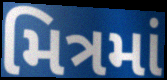
મિત્રમાં